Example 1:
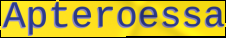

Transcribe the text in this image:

Apteroessa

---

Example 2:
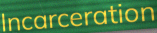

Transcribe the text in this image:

Incarceration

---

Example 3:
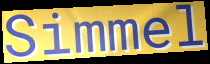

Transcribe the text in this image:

Simmel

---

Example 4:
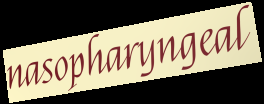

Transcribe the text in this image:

nasopharyngeal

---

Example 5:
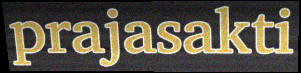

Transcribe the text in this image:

prajasakti